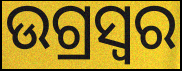
ଉଗ୍ରସ୍ୱର